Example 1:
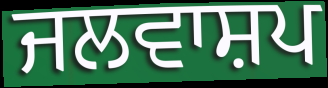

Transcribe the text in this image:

ਜਲਵਾਸ਼ਪ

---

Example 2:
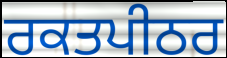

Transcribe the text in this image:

ਰਕਤਪੀਠਰ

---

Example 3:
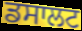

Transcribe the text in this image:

ਡਸਾਲਟ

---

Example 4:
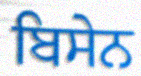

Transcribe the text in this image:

ਬਿਸੇਨ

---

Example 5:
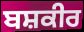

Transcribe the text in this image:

ਬਸ਼ਕੀਰ